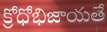
క్రోధోభిజాయతే